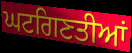
ਘਟਗਿਣਤੀਆਂ